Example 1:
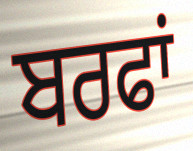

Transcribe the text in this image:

ਬਰਫਾਂ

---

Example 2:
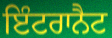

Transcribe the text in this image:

ਇੰਟਰਾਨੈਟ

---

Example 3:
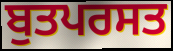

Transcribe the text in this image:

ਬੁਤਪਰਸਤ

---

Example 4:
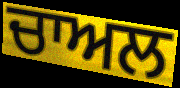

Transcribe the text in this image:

ਚਾਅਲ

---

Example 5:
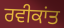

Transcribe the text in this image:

ਰਵੀਕਾਂਤ